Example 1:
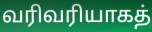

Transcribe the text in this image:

வரிவரியாகத்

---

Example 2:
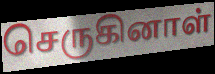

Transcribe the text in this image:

செருகினாள்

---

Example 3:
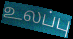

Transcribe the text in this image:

உலப்பு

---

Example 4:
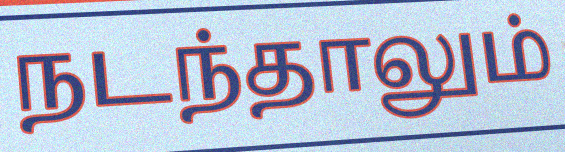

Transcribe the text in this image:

நடந்தாலும்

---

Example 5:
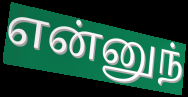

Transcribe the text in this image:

என்னுந்